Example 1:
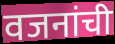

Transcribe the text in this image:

वजनांची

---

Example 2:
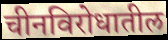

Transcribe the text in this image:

चीनविरोधातील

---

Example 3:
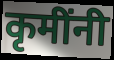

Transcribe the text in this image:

कृमींनी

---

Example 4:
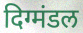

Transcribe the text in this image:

दिग्मंडल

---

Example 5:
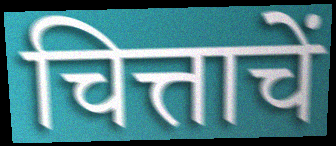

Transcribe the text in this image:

चित्ताचें